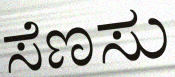
ಸೆಣಸು